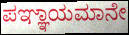
ಪಞ್ಞಾಯಮಾನೇ